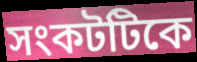
সংকটটিকে